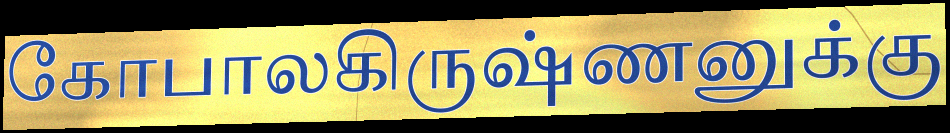
கோபாலகிருஷ்ணனுக்கு